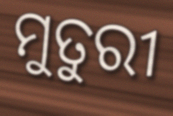
ମୁତୁରୀ